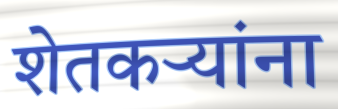
शेतकऱ्यांना